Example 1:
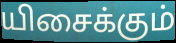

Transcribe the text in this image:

யிசைக்கும்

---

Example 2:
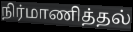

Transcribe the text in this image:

நிர்மாணித்தல்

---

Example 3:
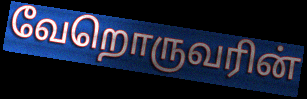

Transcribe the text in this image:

வேறொருவரின்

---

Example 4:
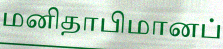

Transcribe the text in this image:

மனிதாபிமானப்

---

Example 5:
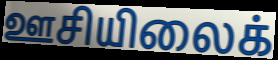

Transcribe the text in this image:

ஊசியிலைக்